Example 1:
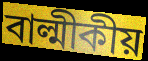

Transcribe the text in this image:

বাল্মীকীয়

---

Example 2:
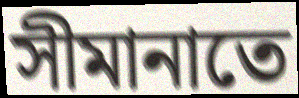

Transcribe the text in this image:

সীমানাতে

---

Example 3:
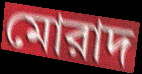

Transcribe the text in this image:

মোরাদ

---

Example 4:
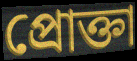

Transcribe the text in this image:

প্রোক্তা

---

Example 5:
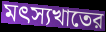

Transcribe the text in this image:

মৎস্যখাতের